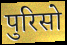
पुरिसो